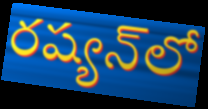
రష్యన్‌లో